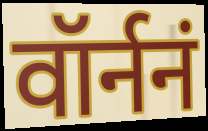
वॉर्ननं